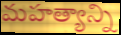
మహత్యాన్ని